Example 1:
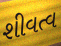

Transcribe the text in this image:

શીવત્વ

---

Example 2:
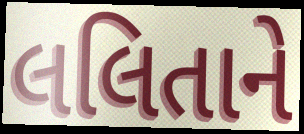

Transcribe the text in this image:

લલિતાને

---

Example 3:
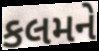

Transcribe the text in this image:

કલમને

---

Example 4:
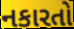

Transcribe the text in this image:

નકારતો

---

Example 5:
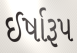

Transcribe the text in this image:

ઈર્ષારૂપ